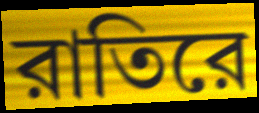
রাতিরে